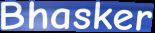
Bhasker